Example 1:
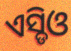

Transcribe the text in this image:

ଏସ୍ଡିଓ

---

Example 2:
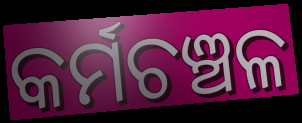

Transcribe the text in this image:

କର୍ମଚଞ୍ଚଳ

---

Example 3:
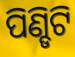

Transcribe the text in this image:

ପିଣ୍ଡିଟି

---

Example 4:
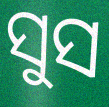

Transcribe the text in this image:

ସୁସ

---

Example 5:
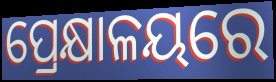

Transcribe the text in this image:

ପ୍ରେକ୍ଷାଳୟରେ